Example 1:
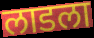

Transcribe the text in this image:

लाडला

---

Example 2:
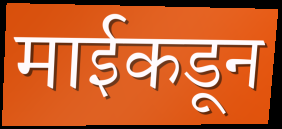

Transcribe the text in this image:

माईकडून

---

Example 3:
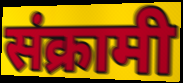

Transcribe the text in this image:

संक्रामी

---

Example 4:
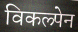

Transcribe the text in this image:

विकल्पेन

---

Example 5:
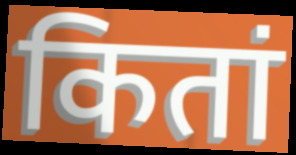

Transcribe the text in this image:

कितां